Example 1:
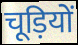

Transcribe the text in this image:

चूड़ियों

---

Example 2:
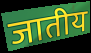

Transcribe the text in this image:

जातीय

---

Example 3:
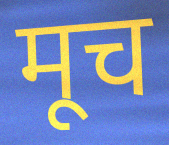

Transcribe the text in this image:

मूच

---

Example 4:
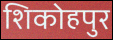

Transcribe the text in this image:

शिकोहपुर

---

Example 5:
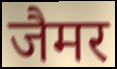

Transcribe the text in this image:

जैमर